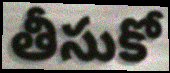
తీసుకో